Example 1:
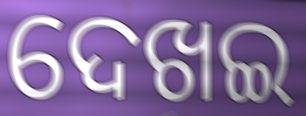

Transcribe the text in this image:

ଦେଖଇ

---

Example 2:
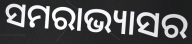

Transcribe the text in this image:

ସମରାଭ୍ୟାସର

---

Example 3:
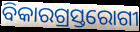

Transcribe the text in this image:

ବିକାରଗ୍ରସ୍ତରୋଗୀ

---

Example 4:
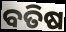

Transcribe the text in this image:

ବତିଷ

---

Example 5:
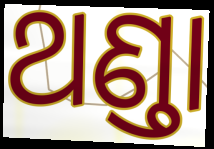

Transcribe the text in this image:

ଥଣ୍ଡା